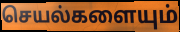
செயல்களையும்